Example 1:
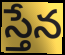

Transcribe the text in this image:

స్తేన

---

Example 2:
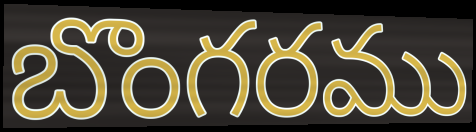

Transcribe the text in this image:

బొంగరము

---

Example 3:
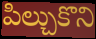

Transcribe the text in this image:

పిల్చుకొని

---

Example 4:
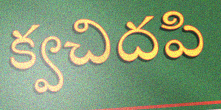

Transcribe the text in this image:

క్వచిదపి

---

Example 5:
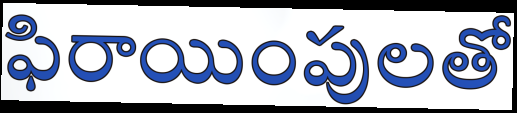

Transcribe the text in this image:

ఫిరాయింపులతో